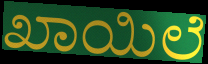
ಖಾಯಿಲೆ